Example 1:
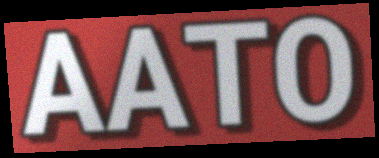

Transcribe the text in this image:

AATO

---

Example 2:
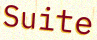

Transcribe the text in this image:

Suite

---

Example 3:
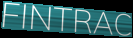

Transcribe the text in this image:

FINTRAC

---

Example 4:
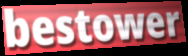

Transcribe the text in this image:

bestower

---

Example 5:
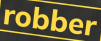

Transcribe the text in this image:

robber